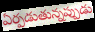
ఏర్పడుతున్నప్పుడు